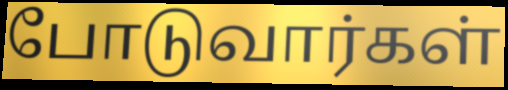
போடுவார்கள்